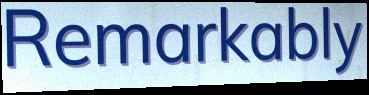
Remarkably